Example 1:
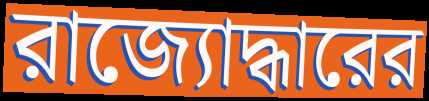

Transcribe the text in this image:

রাজ্যোদ্ধারের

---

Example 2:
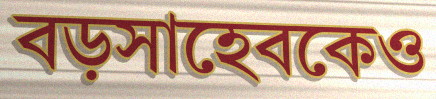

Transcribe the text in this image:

বড়সাহেবকেও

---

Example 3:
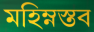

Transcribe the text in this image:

মহিম্নস্তব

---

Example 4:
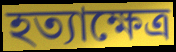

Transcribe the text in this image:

হত্যাক্ষেত্র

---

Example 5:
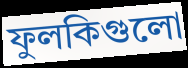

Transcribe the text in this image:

ফুলকিগুলো